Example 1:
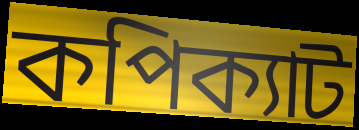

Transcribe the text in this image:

কপিক্যাট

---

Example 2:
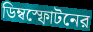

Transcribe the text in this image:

ডিম্বস্ফোটনের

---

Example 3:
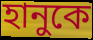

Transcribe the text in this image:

হানুকে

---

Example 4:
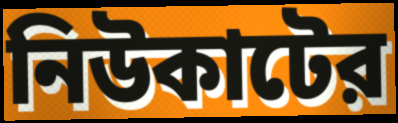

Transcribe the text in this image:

নিউকাটের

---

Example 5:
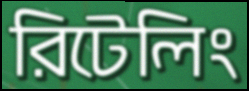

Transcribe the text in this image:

রিটেলিং